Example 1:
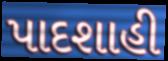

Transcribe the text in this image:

પાદશાહી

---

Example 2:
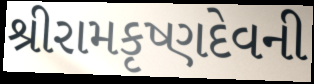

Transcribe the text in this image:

શ્રીરામકૃષ્ણદેવની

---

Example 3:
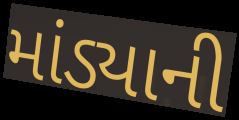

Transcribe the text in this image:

માંડ્યાની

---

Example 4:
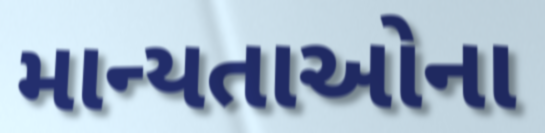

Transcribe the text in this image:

માન્યતાઓના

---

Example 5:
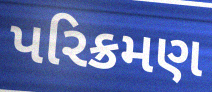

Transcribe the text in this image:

પરિક્રમણ